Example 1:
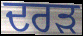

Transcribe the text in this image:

ਦਰੜ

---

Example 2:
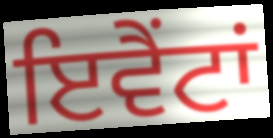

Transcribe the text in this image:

ਇਵੈਂਟਾਂ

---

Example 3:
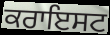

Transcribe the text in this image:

ਕਰਾਇਸਟ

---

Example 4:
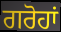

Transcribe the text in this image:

ਗਰੋਹਾਂ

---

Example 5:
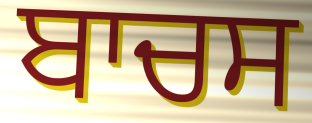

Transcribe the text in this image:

ਬਾਚਸ